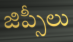
జిప్సీలు